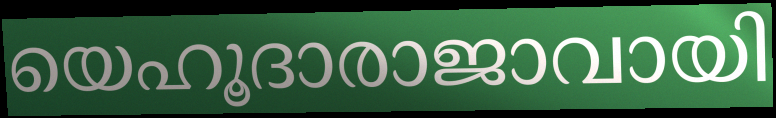
യെഹൂദാരാജാവായി